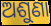
ଅଶୁଣା